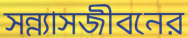
সন্ন্যাসজীবনের